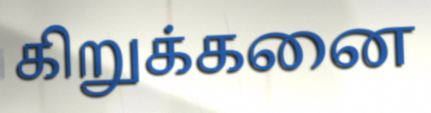
கிறுக்கனை